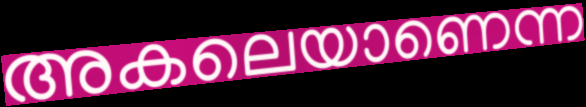
അകലെയാണെന്ന